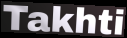
Takhti